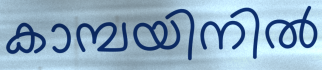
കാമ്പയിനിൽ